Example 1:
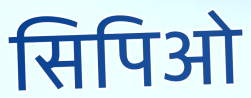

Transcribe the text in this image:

सिपिओ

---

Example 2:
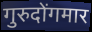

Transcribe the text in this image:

गुरुदोंगमार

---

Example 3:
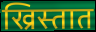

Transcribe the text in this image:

ख्रिस्तात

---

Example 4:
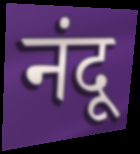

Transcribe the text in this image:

नंदू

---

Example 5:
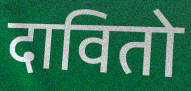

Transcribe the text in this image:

दावितो